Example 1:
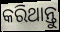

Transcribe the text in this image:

କରିଥାନ୍ତୁ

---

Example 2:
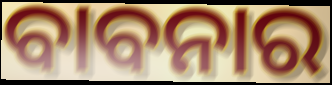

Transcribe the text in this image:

ବାବନାର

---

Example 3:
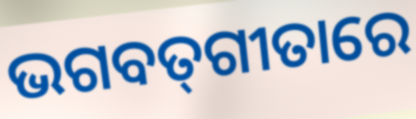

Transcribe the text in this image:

ଭଗବତ୍‌ଗୀତାରେ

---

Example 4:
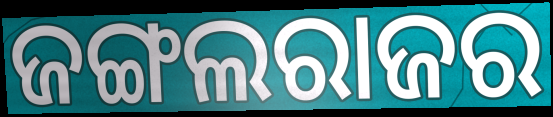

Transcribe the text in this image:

ଜଙ୍ଗଲରାଜର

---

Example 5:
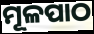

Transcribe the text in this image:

ମୂଳପାଠ